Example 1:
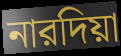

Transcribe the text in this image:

নারদিয়া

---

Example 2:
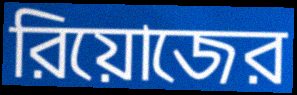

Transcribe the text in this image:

রিয়োজের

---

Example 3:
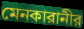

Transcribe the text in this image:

মেনকারানীর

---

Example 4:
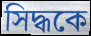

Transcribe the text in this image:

সিদ্ধকে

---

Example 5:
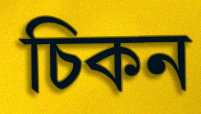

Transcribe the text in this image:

চিকন